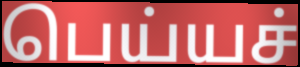
பெய்யச்